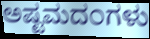
ಅಷ್ಟಮದಂಗಳು